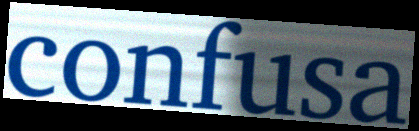
confusa